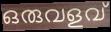
ഒരുവളവ്